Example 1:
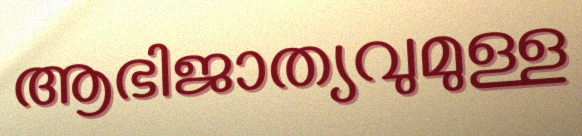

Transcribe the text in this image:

ആഭിജാത്യവുമുള്ള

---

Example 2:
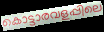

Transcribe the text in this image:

കൊട്ടാരവളപ്പിലെ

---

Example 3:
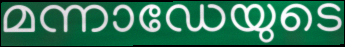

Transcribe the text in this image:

മന്നാഡേയുടെ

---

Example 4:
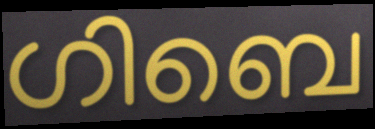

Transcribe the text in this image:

ഗിബെ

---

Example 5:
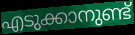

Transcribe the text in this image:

എടുക്കാനുണ്ട്